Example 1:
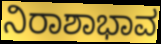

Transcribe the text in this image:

ನಿರಾಶಾಭಾವ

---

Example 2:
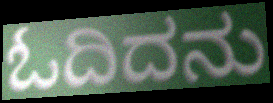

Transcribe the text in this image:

ಓದಿದನು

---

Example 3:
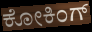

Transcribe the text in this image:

ಕೋಕಿಂಗ್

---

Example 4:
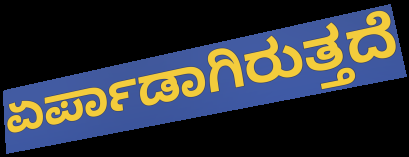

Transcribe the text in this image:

ಏರ್ಪಾಡಾಗಿರುತ್ತದೆ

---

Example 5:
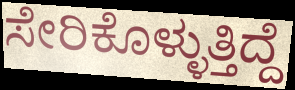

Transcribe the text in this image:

ಸೇರಿಕೊಳ್ಳುತ್ತಿದ್ದೆ